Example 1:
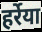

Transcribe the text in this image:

हर्रेया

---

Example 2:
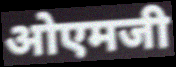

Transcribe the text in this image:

ओएमजी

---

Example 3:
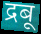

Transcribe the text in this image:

द्रबू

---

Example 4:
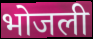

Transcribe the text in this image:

भोजली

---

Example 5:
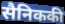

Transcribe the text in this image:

सैनिककी